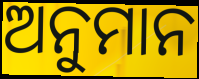
ଅନୁମାନ